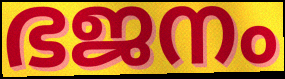
ഭജനം